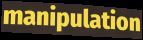
manipulation